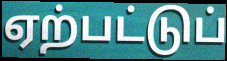
ஏற்பட்டுப்